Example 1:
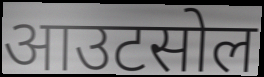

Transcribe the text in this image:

आउटसोल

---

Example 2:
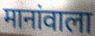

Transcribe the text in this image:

मानांवाला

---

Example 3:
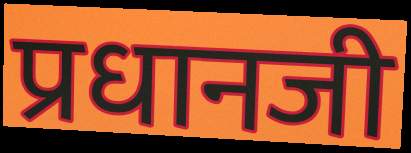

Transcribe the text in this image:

प्रधानजी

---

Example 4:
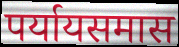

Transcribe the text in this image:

पर्यायसमास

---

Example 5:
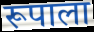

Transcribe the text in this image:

रूपाला